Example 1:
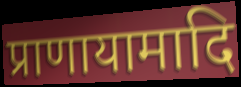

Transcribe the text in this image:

प्राणायामादि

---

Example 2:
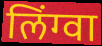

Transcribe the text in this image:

लिंग्वा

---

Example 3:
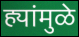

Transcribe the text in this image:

ह्यांमुळे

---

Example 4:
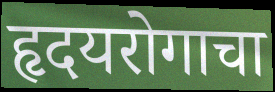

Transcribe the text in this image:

हृदयरोगाचा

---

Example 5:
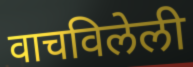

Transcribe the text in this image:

वाचविलेली